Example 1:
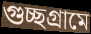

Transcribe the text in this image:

গুচ্ছগ্রামে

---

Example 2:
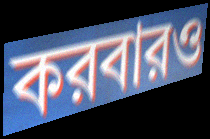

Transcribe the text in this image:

করবারও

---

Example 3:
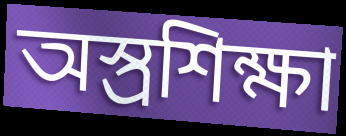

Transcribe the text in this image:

অস্ত্রশিক্ষা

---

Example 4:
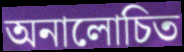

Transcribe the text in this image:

অনালোচিত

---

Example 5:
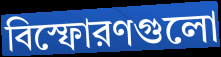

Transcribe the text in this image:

বিস্ফোরণগুলো